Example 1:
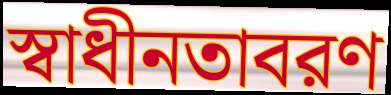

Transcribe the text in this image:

স্বাধীনতাবরণ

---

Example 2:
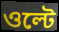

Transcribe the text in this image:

ওল্টে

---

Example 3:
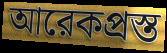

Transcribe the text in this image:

আরেকপ্রস্ত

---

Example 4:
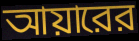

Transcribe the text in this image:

আয়ারের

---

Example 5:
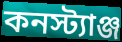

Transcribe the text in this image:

কনস্ট্যাঞ্জ